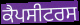
ਕੈਪਸੀਟਰਸ